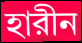
হারীন